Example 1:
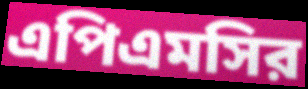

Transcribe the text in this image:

এপিএমসির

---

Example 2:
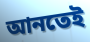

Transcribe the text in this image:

আনতেই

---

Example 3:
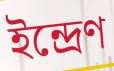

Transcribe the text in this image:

ইন্দ্রেণ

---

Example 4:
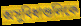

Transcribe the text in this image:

অসুবিধাগুলিকে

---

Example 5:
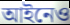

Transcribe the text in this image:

আইনেও